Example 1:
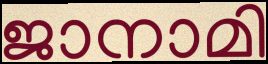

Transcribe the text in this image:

ജാനാമി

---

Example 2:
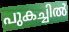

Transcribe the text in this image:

പുകച്ചിൽ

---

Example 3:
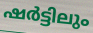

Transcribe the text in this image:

ഷർട്ടിലും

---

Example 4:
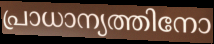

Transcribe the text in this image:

പ്രാധാന്യത്തിനോ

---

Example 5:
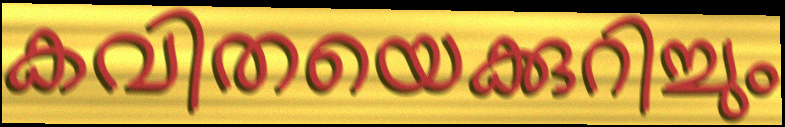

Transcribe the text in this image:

കവിതയെക്കുറിച്ചും